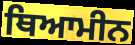
ਥਿਆਮੀਨ